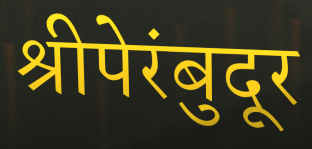
श्रीपेरंबुदूर